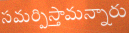
సమర్పిస్తామన్నారు